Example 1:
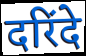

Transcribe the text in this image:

दरिंदे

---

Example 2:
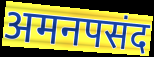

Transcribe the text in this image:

अमनपसंद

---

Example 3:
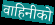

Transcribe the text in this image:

वाहिनीको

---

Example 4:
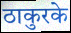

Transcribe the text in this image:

ठाकुरके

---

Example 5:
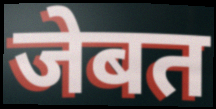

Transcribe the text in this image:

जेबत